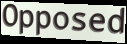
Opposed